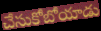
చేసుకోబోయాడు